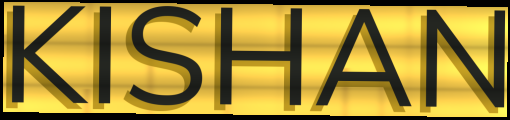
KISHAN